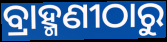
ବ୍ରାହ୍ମଣୀଠାରୁ